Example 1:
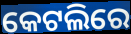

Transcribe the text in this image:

କେଟଲିରେ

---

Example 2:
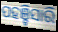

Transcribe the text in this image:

ପହଞ୍ଚିସାରି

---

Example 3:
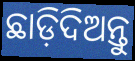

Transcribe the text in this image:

ଛାଡ଼ିଦିଅନ୍ତୁ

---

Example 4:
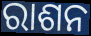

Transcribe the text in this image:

ରାଶନ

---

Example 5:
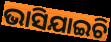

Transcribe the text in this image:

ଭାସିଯାଇଚି